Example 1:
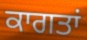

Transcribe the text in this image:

ਕਾਗਤਾਂ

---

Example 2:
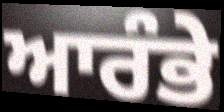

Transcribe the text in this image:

ਆਰੰਭੇ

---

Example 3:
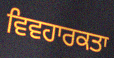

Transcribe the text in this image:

ਵਿਵਹਾਰਕਤਾ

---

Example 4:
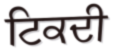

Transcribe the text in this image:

ਟਿਕਦੀ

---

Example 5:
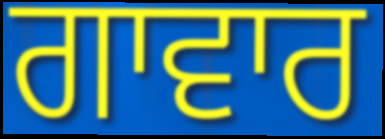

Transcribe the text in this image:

ਗਾਵਾਰ